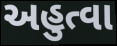
અહુત્વા